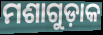
ମଶାଗୁଡ଼ାକ